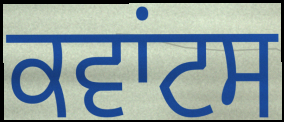
ਕਵਾਂਟਸ